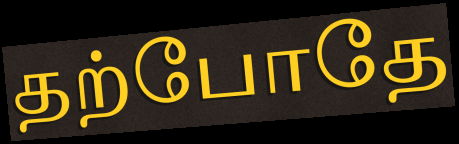
தற்போதே